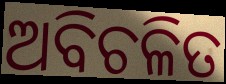
ଅବିଚଳିତ